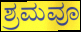
ಶ್ರಮವೂ